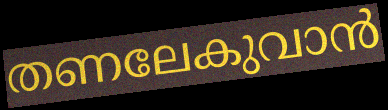
തണലേകുവാൻ